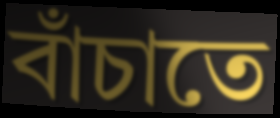
বাঁচাতে